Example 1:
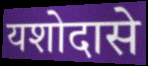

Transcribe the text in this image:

यशोदासे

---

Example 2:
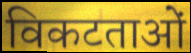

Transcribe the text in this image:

विकटताओं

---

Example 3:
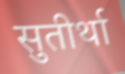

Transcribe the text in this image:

सुतीर्था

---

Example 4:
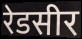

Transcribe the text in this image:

रेडसीर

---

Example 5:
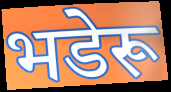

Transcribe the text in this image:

भडेरू